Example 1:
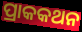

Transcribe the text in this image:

ପ୍ରାକକଥନ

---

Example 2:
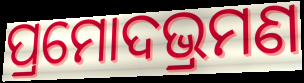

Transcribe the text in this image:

ପ୍ରମୋଦଭ୍ରମଣ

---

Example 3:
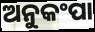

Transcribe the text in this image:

ଅନୁକଂପା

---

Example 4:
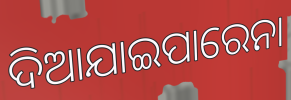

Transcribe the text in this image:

ଦିଆଯାଇପାରେନା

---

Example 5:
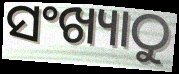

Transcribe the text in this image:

ସଂଖ୍ୟାଠୁ